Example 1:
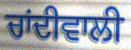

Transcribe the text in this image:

ਚਾਂਦੀਵਾਲੀ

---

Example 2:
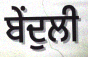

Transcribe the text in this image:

ਬੇਂਦੁਲੀ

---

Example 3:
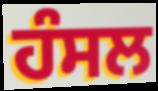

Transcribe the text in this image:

ਹੰਸਲ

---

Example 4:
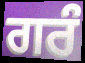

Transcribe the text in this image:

ਗਰੰ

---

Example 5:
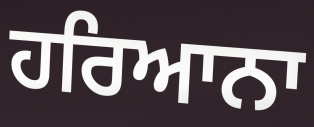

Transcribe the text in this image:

ਹਰਿਆਨਾ